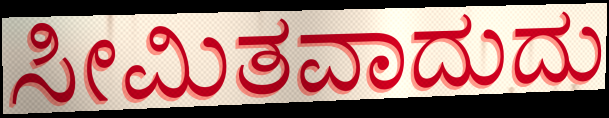
ಸೀಮಿತವಾದುದು